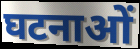
घटनाओं